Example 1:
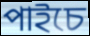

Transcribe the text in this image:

পাইচে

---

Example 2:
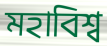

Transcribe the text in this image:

মহাবিশ্ব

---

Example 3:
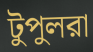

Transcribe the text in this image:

টুপুলরা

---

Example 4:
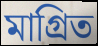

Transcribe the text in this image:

মাগ্রিত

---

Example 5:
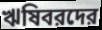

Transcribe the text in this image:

ঋষিবরদের